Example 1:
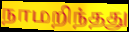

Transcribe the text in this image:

நாமறிந்தது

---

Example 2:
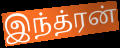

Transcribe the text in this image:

இந்த்ரன்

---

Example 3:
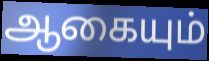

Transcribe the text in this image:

ஆகையும்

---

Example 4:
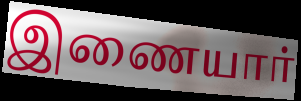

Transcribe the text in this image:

இணையார்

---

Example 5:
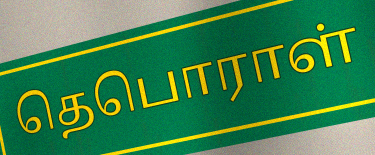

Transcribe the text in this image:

தெபொராள்